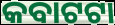
କବାଟଟା